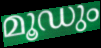
മൂഡും